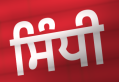
ਸਿੰਧੀ